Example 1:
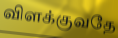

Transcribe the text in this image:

விளக்குவதே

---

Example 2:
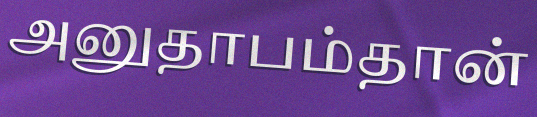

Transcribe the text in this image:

அனுதாபம்தான்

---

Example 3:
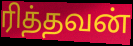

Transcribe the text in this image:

ரித்தவன்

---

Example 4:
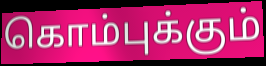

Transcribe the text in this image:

கொம்புக்கும்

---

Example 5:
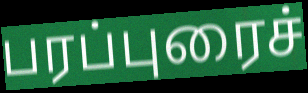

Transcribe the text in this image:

பரப்புரைச்